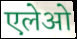
एलेओ